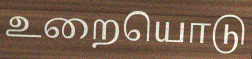
உறையொடு